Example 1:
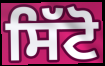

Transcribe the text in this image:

ਸਿੱਟੋ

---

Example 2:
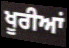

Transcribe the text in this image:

ਖੂਰੀਆਂ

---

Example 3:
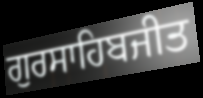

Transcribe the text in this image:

ਗੁਰਸਾਹਿਬਜੀਤ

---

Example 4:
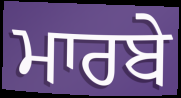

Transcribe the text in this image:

ਮਾਰਬੇ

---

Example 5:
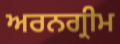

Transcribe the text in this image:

ਅਰਨਗ੍ਰੀਮ